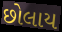
છોલાય